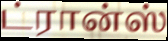
ட்ரான்ஸ்